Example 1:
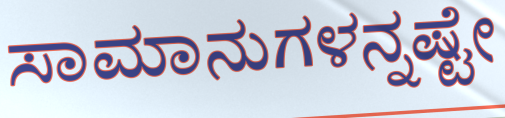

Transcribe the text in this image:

ಸಾಮಾನುಗಳನ್ನಷ್ಟೇ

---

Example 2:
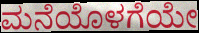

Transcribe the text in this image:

ಮನೆಯೊಳಗೆಯೇ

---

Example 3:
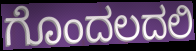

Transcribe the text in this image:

ಗೊಂದಲದಲಿ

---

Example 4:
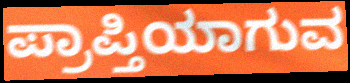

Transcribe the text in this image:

ಪ್ರಾಪ್ತಿಯಾಗುವ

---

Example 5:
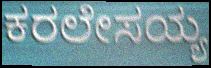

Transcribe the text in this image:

ಕರಲೇಸಯ್ಯ